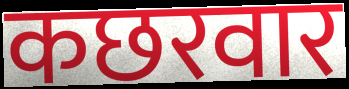
कछरवार